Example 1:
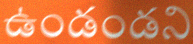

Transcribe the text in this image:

ఉండండని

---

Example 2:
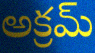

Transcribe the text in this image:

అక్రమ్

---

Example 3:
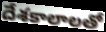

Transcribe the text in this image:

దేశకాలాలతో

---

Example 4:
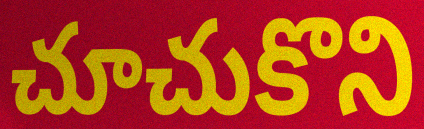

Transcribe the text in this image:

చూచుకొని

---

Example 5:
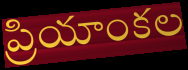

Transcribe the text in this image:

ప్రియాంకల